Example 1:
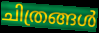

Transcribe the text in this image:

ചിത്രങ്ങൾ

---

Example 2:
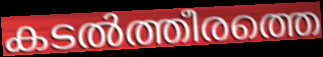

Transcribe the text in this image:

കടൽത്തീരത്തെ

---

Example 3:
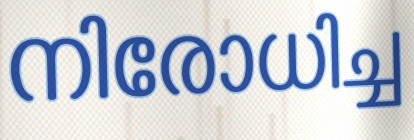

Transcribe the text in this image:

നിരോധിച്ച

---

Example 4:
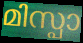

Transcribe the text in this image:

മിസ്പാ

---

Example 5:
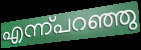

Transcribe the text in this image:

എന്ന്പറഞ്ഞു